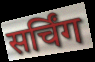
सर्चिंग